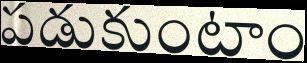
పడుకుంటాం